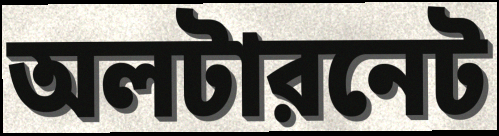
অলটারনেট